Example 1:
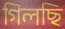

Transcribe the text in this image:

গিলছি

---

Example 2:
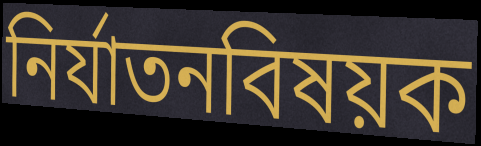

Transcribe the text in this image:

নির্যাতনবিষয়ক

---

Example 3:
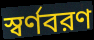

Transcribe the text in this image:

স্বর্ণবরণ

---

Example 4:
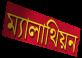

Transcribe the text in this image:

ম্যালাথিয়ন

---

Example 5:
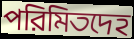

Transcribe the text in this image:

পরিমিতদেহ